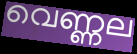
വെണ്ണല